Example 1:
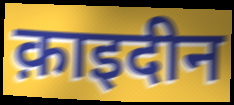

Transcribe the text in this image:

क़ाइदीन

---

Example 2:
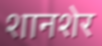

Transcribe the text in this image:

शानशेर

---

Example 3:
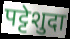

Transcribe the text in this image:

पट्टेशुदा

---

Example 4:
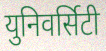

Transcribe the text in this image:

युनिवर्सिटी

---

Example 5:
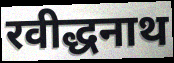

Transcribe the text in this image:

रवीद्धनाथ